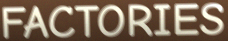
FACTORIES